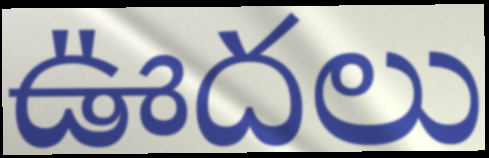
ఊదలు